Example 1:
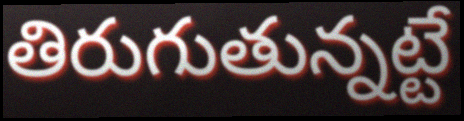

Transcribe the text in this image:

తిరుగుతున్నట్టే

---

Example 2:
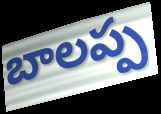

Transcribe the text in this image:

బాలప్ప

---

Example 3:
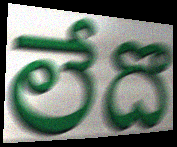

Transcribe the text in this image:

లేదొ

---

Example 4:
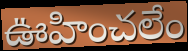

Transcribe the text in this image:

ఊహించలేం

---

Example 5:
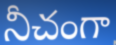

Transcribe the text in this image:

నీచంగా